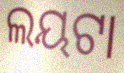
ଲୟଟା